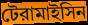
টেরামাইসিন